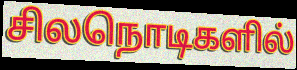
சிலநொடிகளில்